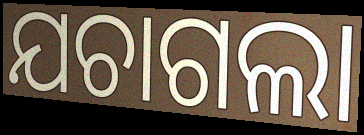
ଯଚାଗଲା